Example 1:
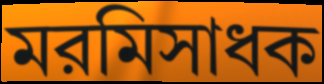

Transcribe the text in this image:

মরমিসাধক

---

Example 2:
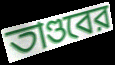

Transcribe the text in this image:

তাণ্ডবের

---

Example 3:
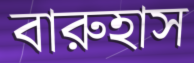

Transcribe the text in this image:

বারুহাস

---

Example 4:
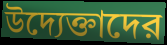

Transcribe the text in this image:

উদ্যেক্তাদের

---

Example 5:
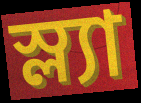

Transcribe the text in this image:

স্ল্যা